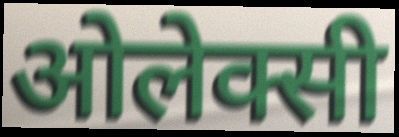
ओलेक्सी